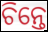
ଚିନ୍ତେ